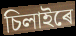
চিলাইৰে